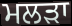
ਮਲੜਾ